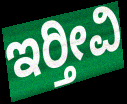
ಇರ‍್ತೀವಿ